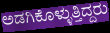
ಅಡಗಿಕೊಳ್ಳುತ್ತಿದ್ದರು